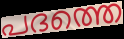
പദത്തെ